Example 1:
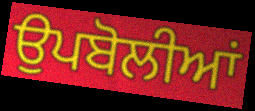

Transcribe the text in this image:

ਉਪਬੋਲੀਆਂ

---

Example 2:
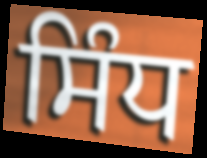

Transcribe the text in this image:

ਸਿੰਧ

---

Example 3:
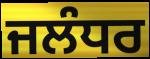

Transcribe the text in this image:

ਜਲੰਧਰ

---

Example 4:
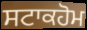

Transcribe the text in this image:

ਸਟਾਕਹੋਮ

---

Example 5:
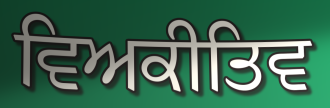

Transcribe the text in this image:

ਵਿਅਕੀਤਿਵ